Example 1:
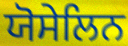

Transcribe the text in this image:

ਯੋਸੇਲਿਨ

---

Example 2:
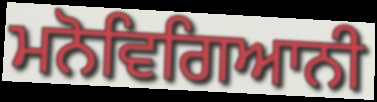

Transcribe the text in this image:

ਮਨੋਵਿਗਿਆਨੀ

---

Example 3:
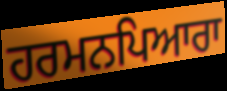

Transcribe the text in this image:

ਹਰਮਨਪਿਆਰਾ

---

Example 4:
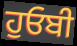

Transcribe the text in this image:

ਹੁਓਬੀ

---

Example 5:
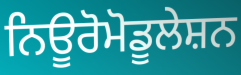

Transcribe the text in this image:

ਨਿਊਰੋਮੋਡੂਲੇਸ਼ਨ